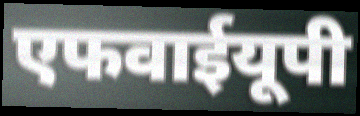
एफवाईयूपी